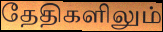
தேதிகளிலும்